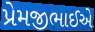
પ્રેમજીભાઈએ